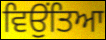
ਵਿਉਂਤਿਆ